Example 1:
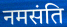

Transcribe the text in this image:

नमसंति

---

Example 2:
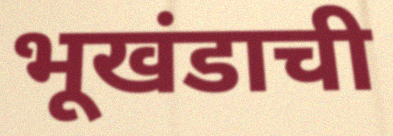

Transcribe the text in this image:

भूखंडाची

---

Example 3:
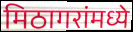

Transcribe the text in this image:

मिठागरांमध्ये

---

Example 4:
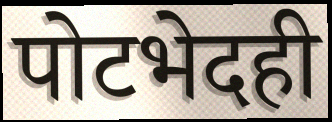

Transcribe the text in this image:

पोटभेदही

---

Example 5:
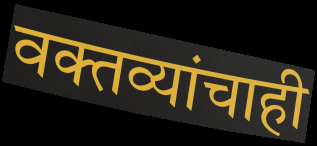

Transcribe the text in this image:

वक्तव्यांचाही